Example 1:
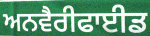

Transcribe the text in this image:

ਅਨਵੈਰੀਫਾਈਡ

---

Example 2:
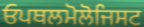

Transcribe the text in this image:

ਓਪਥਲਮੋਲੋਜਿਸਟ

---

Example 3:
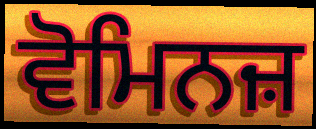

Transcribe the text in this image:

ਵੋਮਿਨਜ਼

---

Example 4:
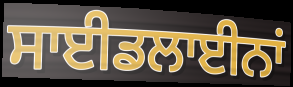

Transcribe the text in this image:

ਸਾਈਡਲਾਈਨਾਂ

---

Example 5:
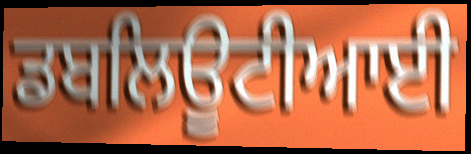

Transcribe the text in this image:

ਡਬਲਿਊਟੀਆਈ